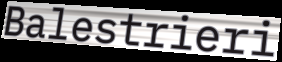
Balestrieri